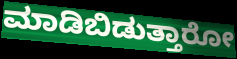
ಮಾಡಿಬಿಡುತ್ತಾರೋ